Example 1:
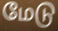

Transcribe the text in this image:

மேடு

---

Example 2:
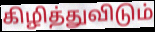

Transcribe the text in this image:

கிழித்துவிடும்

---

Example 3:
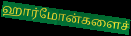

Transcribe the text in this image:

ஹார்மோன்களைச்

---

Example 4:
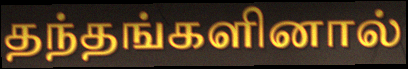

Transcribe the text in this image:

தந்தங்களினால்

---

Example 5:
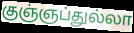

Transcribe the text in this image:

குஞ்ஞப்துல்லா